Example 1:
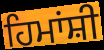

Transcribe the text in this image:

ਹਿਮਾਂਸ਼ੀ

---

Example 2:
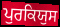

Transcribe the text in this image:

ਪੁਰਕਿਯੁਸ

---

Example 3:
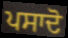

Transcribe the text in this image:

ਪਸਾਦੋ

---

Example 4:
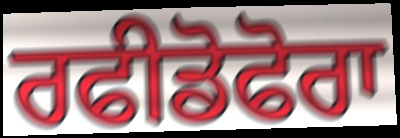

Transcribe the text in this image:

ਰਫੀਡੋਫੋਰਾ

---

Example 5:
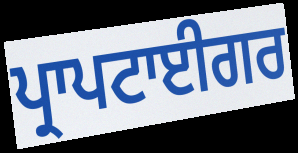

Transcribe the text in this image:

ਪ੍ਰਾਪਟਾਈਗਰ